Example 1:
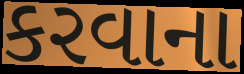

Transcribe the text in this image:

કરવાના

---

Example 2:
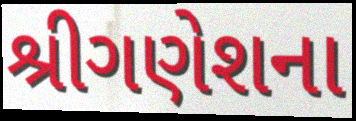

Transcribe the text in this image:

શ્રીગણેશના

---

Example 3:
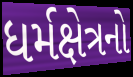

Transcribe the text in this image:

ધર્મક્ષેત્રનો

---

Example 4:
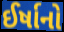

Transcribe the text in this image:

ઈર્ષાનો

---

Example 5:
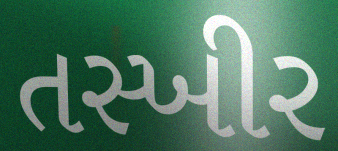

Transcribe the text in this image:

તસ્ખીર